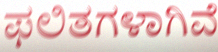
ಫಲಿತಗಳಾಗಿವೆ